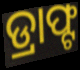
ଡ୍ରାଫ୍ଟ